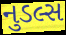
નુડલ્સ